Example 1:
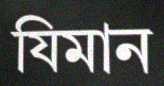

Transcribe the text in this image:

যিমান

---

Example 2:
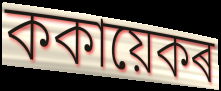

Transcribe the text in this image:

ককায়েকৰ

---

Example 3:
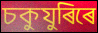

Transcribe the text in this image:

চকুযুৰিৰে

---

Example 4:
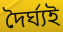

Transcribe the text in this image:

দৈৰ্ঘ্যই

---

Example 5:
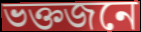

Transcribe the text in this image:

ভক্তজনে